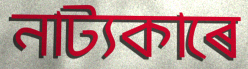
নাট্যকাৰে